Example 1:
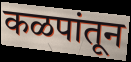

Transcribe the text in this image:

कळपांतून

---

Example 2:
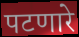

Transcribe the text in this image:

पटणारे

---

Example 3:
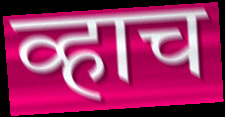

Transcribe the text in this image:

व्हाच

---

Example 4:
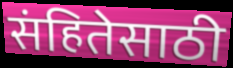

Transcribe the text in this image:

संहितेसाठी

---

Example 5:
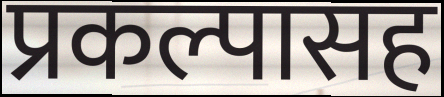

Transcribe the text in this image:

प्रकल्पासह